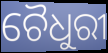
ଚୈଧୁରୀ